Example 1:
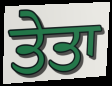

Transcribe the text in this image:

ਤੇਤਾ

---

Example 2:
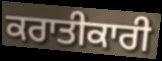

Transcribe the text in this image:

ਕਰਾਤੀਕਾਰੀ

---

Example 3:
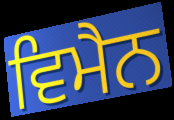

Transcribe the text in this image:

ਵਿਮੈਨ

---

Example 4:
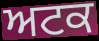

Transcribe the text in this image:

ਅਟਕ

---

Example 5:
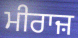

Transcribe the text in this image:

ਮੀਰਾਜ਼